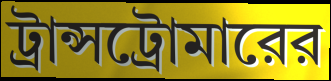
ট্রান্সট্রোমারের